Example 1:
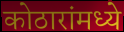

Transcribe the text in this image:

कोठारांमध्ये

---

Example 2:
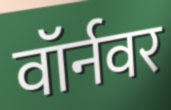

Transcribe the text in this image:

वॉर्नवर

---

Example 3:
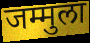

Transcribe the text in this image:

जम्मुला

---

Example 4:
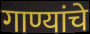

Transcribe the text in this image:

गाण्यांचे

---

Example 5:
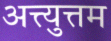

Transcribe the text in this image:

अत्त्युत्तम